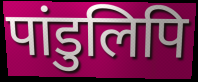
पांडुलिपि